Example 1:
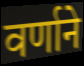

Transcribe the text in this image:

वर्णाने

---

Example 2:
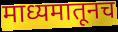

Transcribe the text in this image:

माध्यमातूनच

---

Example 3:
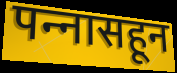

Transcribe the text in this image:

पन्नासहून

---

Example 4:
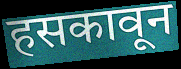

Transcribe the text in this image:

हसकावून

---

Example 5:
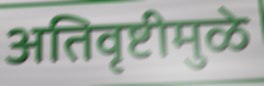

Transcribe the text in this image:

अतिवृष्टीमुळे